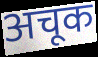
अचूक